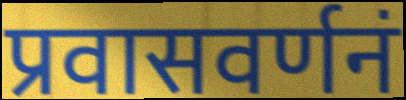
प्रवासवर्णनं